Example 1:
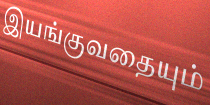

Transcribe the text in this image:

இயங்குவதையும்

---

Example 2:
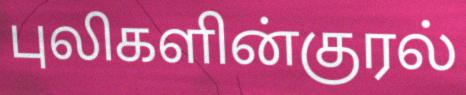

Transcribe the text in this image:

புலிகளின்குரல்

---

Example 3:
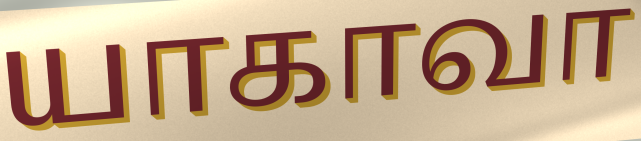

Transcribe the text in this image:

யாகாவா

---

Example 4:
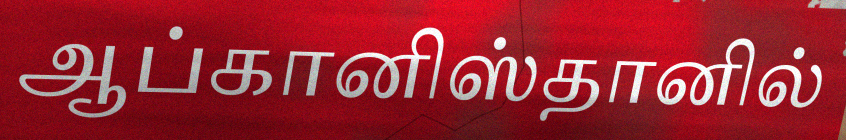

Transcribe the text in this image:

ஆப்கானிஸ்தானில்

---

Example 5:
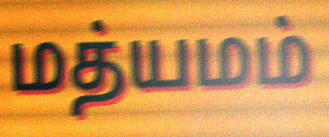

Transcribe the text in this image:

மத்யமம்